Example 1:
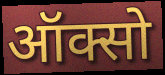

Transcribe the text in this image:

ऑक्सो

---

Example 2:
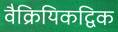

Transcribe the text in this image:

वैक्रियिकद्विक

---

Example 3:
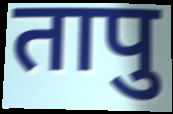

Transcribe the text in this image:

तापु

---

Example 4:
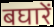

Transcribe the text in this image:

बघारें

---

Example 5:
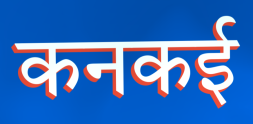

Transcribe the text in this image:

कनकई